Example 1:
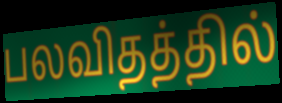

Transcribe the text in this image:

பலவிதத்தில்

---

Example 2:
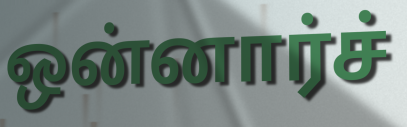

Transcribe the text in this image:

ஒன்னார்ச்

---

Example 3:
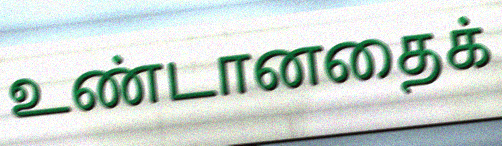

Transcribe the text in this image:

உண்டானதைக்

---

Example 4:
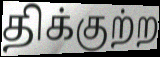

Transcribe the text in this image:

திக்குற்ற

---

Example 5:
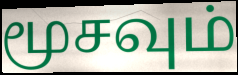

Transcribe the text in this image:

மூசவும்